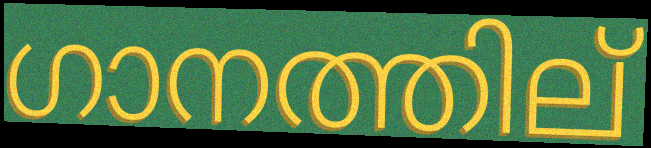
ഗാനത്തില്